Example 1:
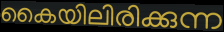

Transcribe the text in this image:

കൈയിലിരിക്കുന്ന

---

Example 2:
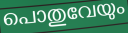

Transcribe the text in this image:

പൊതുവേയും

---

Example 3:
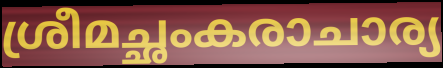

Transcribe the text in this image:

ശ്രീമച്ഛംകരാചാര്യ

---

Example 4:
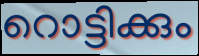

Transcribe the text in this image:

റൊട്ടിക്കും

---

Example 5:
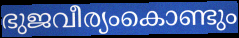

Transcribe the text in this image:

ഭുജവീര്യംകൊണ്ടും